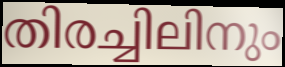
തിരച്ചിലിനും